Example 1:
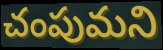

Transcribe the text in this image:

చంపుమని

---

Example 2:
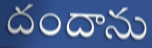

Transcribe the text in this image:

దందాను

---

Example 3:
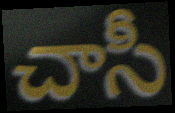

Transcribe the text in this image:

చాసీ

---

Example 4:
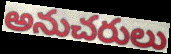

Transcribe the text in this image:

అనుచరులు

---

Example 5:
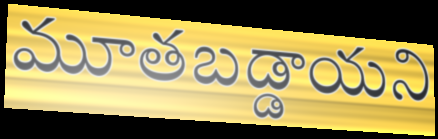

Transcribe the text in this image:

మూతబడ్డాయని